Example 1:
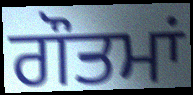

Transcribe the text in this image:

ਗੌਤਮਾਂ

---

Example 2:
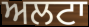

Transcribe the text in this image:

ਅਲਟਾ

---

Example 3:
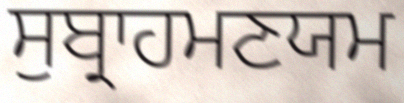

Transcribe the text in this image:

ਸੁਬ੍ਰਾਹਮਣਯਮ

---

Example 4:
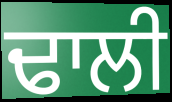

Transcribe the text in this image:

ਢਾਲੀ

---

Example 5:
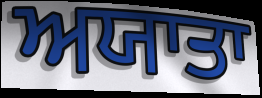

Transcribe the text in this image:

ਅਯਾਤਾ